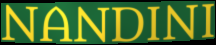
NANDINI